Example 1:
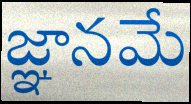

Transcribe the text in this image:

జ్ఞానమే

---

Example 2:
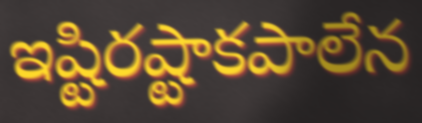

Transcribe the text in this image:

ఇష్టిరష్టాకపాలేన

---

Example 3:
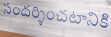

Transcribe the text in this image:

సందర్శించటానికి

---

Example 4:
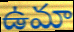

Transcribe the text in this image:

ఉమా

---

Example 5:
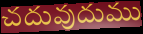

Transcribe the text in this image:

చదువుదుము